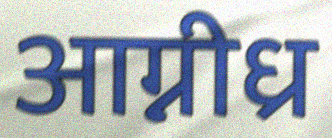
आग्नीध्र